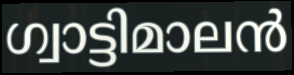
ഗ്വാട്ടിമാലൻ